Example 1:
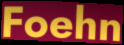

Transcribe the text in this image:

Foehn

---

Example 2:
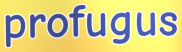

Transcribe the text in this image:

profugus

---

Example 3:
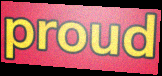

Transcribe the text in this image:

proud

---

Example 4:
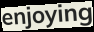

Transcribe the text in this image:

enjoying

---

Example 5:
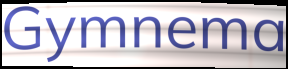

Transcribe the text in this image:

Gymnema